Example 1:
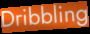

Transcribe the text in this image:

Dribbling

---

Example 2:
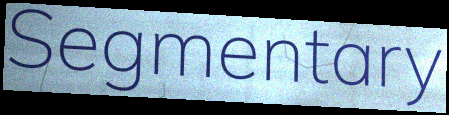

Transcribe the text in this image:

Segmentary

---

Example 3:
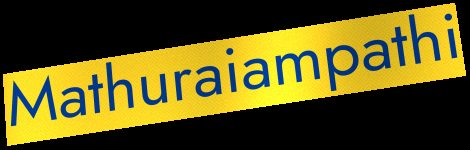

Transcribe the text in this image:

Mathuraiampathi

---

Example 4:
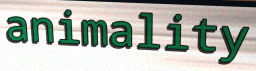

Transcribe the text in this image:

animality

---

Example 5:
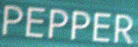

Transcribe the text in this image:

PEPPER